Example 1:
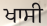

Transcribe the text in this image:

ਖਾਸੀ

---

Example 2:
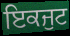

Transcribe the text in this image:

ਇਕਜੁਟ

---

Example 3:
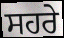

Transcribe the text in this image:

ਸਹਰੇ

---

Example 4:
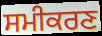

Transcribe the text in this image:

ਸਮੀਕਰਣ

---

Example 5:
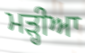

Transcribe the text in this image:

ਮੜ੍ਹੀਆ